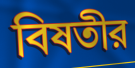
বিষতীর